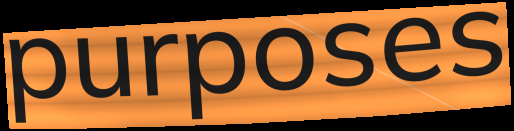
purposes